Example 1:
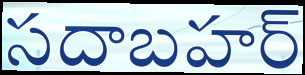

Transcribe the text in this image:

సదాబహర్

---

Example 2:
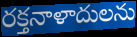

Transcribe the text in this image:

రక్తనాళాదులను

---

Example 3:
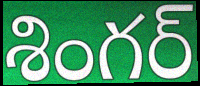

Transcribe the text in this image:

శింగర్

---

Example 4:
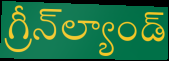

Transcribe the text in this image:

గ్రీన్‌ల్యాండ్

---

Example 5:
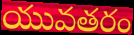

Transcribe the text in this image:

యువతరం